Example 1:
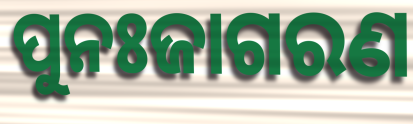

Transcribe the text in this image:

ପୁନଃଜାଗରଣ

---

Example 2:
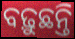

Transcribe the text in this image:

ବଢ଼ୁଛନ୍ତି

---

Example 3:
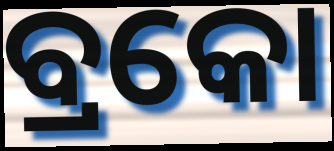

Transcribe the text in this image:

ବ୍ରକୋ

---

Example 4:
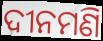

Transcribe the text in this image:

ଦୀନମଣି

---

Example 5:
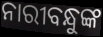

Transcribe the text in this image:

ନାରୀବନ୍ଧୁଙ୍କ